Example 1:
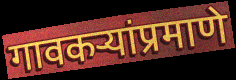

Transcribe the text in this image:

गावकऱ्यांप्रमाणे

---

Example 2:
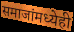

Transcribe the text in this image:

समाजांमध्येही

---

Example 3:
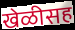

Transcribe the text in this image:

खेळीसह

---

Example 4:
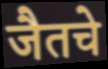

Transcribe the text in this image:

जैतचे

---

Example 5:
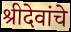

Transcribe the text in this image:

श्रीदेवांचे